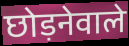
छोड़नेवाले